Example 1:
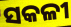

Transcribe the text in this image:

ସକଳୀ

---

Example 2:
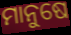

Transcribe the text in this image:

ମାନୁଷେ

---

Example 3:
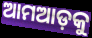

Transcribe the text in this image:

ଆମଆଡ଼କୁ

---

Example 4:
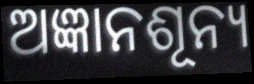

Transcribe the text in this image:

ଅଜ୍ଞାନଶୂନ୍ୟ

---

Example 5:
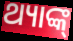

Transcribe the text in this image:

ଥ୍ୟାଙ୍କ୍